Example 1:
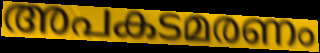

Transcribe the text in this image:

അപകടമരണം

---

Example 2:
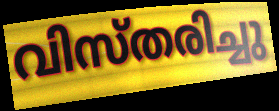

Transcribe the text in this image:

വിസ്തരിച്ചു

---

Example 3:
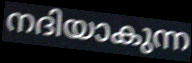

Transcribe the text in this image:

നദിയാകുന്ന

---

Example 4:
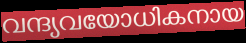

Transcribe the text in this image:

വന്ദ്യവയോധികനായ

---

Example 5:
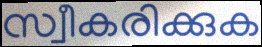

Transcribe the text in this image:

സ്വീകരിക്കുക